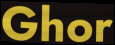
Ghor